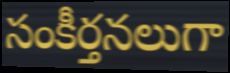
సంకీర్తనలుగా